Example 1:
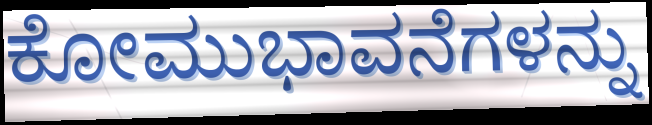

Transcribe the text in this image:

ಕೋಮುಭಾವನೆಗಳನ್ನು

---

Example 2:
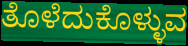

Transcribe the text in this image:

ತೊಳೆದುಕೊಳ್ಳುವ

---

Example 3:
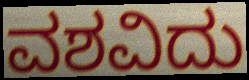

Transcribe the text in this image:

ವಶವಿದು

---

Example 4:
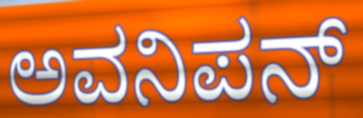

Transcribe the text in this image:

ಅವನಿಪನ್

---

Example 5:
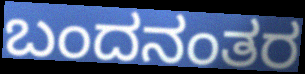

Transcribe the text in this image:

ಬಂದನಂತರ